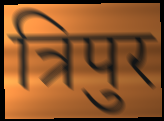
त्रिपुर